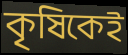
কৃষিকেই